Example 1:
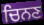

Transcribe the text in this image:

ਚਿਨਣ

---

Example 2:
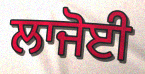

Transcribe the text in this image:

ਲਾਜੋਈ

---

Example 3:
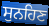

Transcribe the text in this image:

ਸੁਨਹਿਣ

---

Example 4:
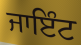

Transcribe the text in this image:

ਜਾਇੰਟ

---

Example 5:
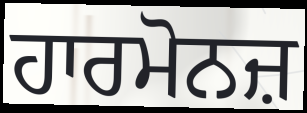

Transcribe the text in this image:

ਹਾਰਮੋਨਜ਼